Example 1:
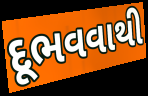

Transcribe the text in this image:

દૂભવવાથી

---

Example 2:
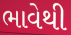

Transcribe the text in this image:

ભાવેથી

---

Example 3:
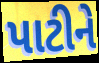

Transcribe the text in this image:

પાટીને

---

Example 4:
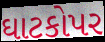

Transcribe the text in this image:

ઘાટકોપર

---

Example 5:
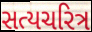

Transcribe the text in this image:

સત્યચરિત્ર